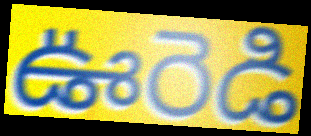
ఊరెడి